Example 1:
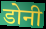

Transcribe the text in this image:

डोनी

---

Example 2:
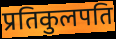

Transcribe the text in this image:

प्रतिकुलपति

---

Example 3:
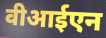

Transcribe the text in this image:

वीआईएन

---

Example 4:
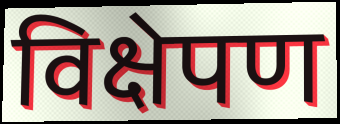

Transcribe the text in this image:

विक्षेपण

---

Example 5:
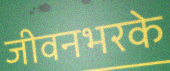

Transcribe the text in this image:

जीवनभरके